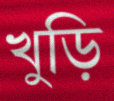
খুড়ি